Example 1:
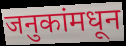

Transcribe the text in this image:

जनुकांमधून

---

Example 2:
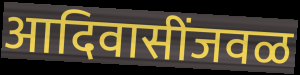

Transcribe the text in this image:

आदिवासींजवळ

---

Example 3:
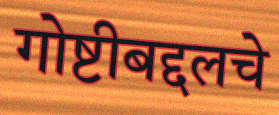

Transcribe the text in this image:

गोष्टीबद्दलचे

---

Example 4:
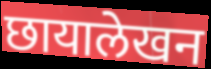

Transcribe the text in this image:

छायालेखन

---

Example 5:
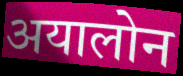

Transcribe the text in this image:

अयालोन